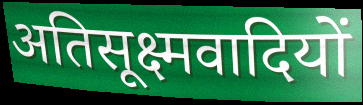
अतिसूक्ष्मवादियों